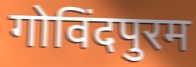
गोविंदपुरम